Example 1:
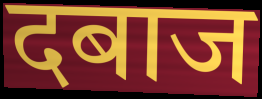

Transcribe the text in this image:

दबाज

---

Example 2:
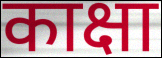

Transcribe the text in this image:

काक्षा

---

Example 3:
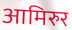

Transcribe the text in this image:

आमिरुर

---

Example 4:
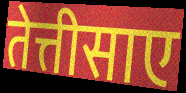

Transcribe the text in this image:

तेत्तीसाए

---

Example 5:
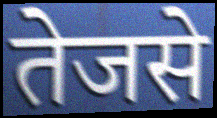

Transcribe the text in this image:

तेजसे